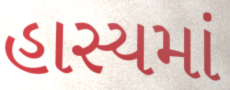
હાસ્યમાં